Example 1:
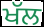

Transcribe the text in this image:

ਖੱਲ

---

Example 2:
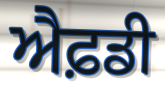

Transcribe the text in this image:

ਐਫ਼ਡੀ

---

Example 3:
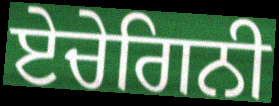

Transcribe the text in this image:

ਏਚੇਗਿਨੀ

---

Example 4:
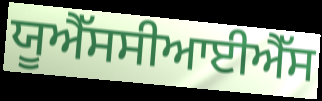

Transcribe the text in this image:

ਯੂਐੱਸਸੀਆਈਐੱਸ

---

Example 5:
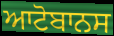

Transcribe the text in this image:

ਆਟੋਬਾਨਸ